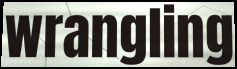
wrangling